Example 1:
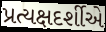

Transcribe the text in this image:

પ્રત્યક્ષદર્શીએ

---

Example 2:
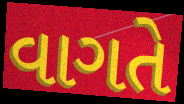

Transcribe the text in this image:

વાગતે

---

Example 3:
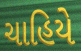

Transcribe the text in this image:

ચાહિયે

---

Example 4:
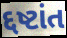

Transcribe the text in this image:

દ્દષ્ટાંત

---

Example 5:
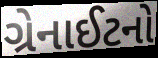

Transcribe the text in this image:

ગ્રેનાઈટનો